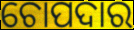
ଚୋପଦାର